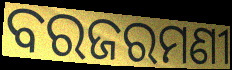
ବରଜରମଣୀ